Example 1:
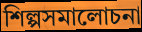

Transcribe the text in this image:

শিল্পসমালোচনা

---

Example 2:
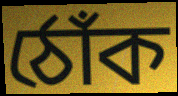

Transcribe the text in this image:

ঠোঁক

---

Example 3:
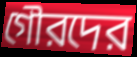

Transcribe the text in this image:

গৌরদের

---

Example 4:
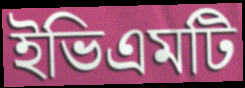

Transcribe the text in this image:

ইভিএমটি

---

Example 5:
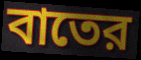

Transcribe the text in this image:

বাতের